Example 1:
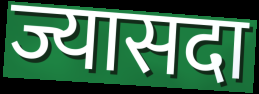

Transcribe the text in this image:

ज्यासदा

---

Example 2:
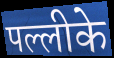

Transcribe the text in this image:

पल्लीके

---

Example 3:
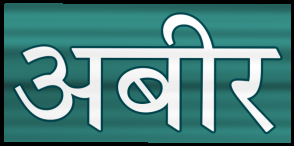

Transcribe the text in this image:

अबीर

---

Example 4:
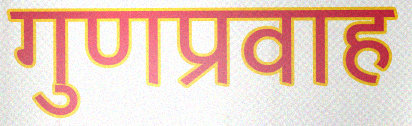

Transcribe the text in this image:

गुणप्रवाह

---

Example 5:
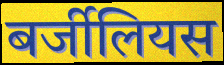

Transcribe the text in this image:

बर्जीलियस